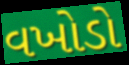
વખોડો